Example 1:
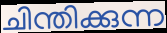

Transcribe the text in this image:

ചിന്തിക്കുന്ന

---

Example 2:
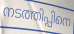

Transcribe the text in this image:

നടത്തിപ്പിനെ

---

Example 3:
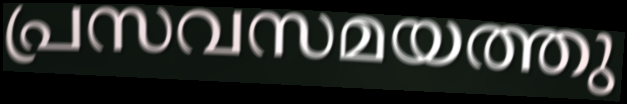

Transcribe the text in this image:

പ്രസവസമയത്തു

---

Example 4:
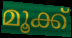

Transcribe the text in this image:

മൂക്ക്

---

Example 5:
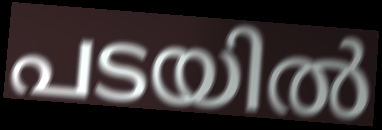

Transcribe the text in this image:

പടയിൽ